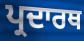
ਪ੍ਰਦਾਰਥ